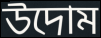
উদোম